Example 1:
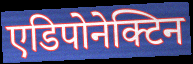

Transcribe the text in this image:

एडिपोनेक्टिन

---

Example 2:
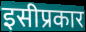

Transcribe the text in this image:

इसीप्रकार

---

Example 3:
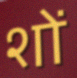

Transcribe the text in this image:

शों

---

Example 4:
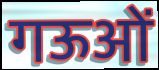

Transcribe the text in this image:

गऊओं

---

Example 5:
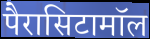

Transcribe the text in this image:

पैरासिटामॉल